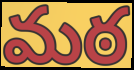
మఠ